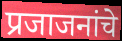
प्रजाजनांचे